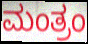
ಮಂತ್ರಂ